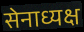
सेनाध्यक्ष